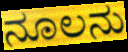
ನೂಲನು